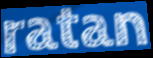
ratan